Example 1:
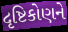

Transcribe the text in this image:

દૃષ્ટિકોણને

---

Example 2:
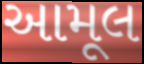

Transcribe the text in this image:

આમૂલ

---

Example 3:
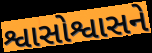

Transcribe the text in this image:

શ્વાસોશ્વાસને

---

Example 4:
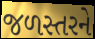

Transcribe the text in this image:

જળસ્તરને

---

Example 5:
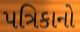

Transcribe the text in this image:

પત્રિકાનો